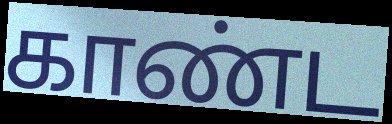
காண்ட